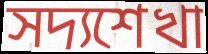
সদ্যশেখা